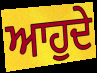
ਆਹੁਦੇ